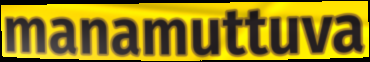
manamuttuva